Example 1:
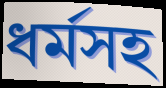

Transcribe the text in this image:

ধর্মসহ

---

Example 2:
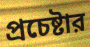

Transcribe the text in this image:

প্রচেষ্টার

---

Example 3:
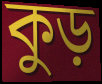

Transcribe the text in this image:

কুড়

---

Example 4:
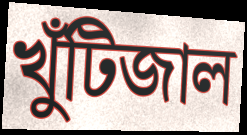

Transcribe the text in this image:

খুঁটিজাল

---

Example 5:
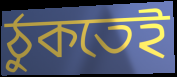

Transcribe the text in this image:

ঠুকতেই